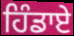
ਹਿੰਡਾਏ